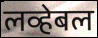
लव्हेबल